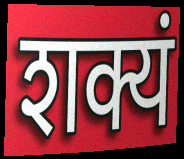
शक्यं